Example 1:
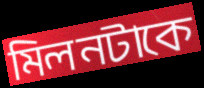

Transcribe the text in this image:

মিলনটাকে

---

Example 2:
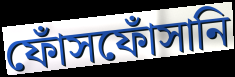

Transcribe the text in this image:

ফোঁসফোঁসানি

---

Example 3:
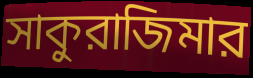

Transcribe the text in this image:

সাকুরাজিমার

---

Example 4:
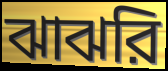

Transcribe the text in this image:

ঝাঝরি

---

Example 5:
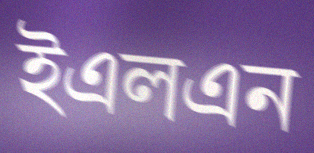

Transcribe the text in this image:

ইএলএন